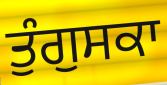
ਤੁੰਗੁਸਕਾ